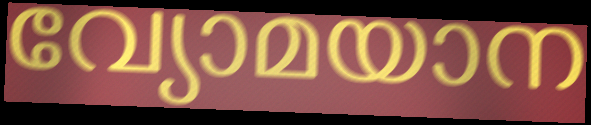
വ്യോമയാന